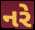
નરે